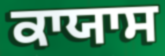
ਕਾਯਾਸ